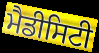
ਮੈਡੀਸਿਟੀ